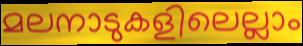
മലനാടുകളിലെല്ലാം